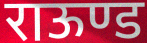
राऊण्ड